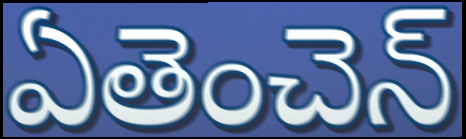
ఏతెంచెన్